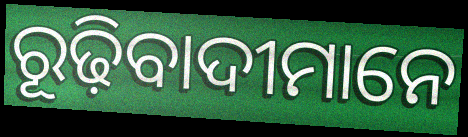
ରୂଢ଼ିବାଦୀମାନେ